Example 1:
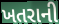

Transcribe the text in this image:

ખતરાની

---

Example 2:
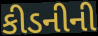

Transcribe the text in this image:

કીડનીની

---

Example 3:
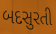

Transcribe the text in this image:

બદસુરતી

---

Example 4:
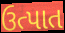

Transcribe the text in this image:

ઉત્પાત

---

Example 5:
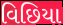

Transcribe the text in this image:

વિછિયા